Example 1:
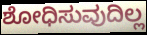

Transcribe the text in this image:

ಶೋಧಿಸುವುದಿಲ್ಲ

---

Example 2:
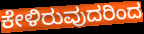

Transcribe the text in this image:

ಕೇಳಿರುವುದರಿಂದ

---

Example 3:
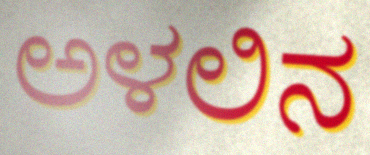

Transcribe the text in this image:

ಅಳಲಿನ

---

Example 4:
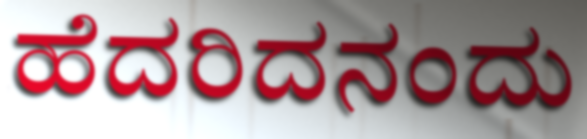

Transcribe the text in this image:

ಹೆದರಿದನಂದು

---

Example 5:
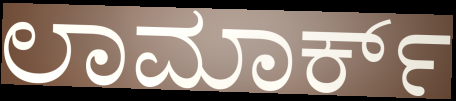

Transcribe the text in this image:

ಲಾಮಾರ್ಕ್